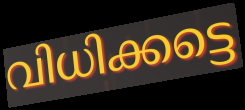
വിധിക്കട്ടെ